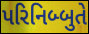
પરિનિબ્બુતે